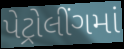
પેટ્રોલીંગમાં